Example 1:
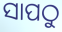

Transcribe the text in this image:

ସାପଠୁ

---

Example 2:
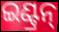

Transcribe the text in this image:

ଇଣ୍ଟ୍ରନ୍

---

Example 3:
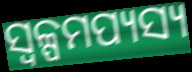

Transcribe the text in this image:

ସ୍ୱଳ୍ପମପ୍ୟସ୍ୟ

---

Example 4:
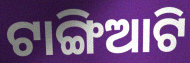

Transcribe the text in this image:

ଟାଙ୍ଗିଆଟି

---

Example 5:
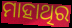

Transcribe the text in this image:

ମାହାଥିର